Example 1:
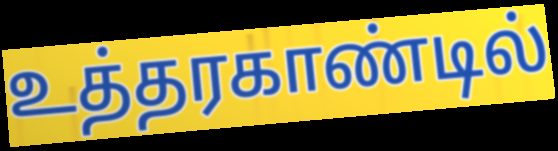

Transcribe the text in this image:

உத்தரகாண்டில்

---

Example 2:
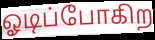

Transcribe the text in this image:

ஓடிப்போகிற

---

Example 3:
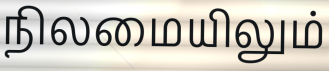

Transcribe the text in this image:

நிலமையிலும்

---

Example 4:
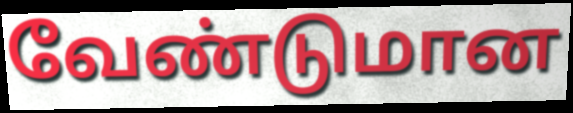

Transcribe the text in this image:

வேண்டுமான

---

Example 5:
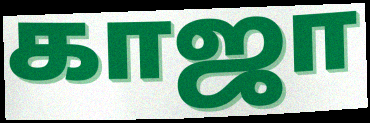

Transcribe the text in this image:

காஜா